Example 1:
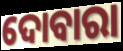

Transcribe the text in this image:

ଦୋବାରା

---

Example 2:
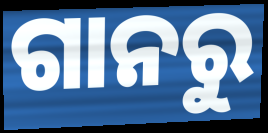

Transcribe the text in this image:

ଗାନରୁ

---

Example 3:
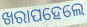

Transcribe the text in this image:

ଖରାପହେଲେ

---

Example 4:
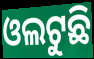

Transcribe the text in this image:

ଓଲଟୁଛି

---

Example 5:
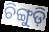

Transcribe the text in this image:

ଚିଙ୍ଗୁଡ଼ି